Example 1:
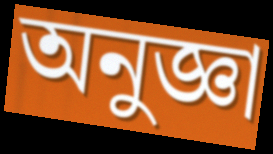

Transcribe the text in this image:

অনুজ্ঞা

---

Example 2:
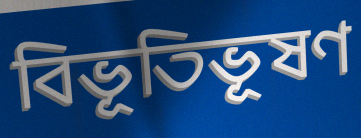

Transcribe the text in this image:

বিভূতিভূষণ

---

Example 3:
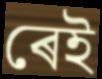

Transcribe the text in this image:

ৰেই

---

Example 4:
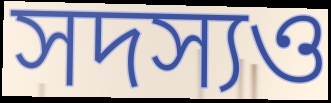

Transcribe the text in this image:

সদস্যও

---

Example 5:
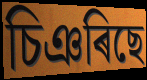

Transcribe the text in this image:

চিঞৰিছে